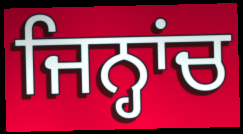
ਜਿਨ੍ਹਾਂਚ